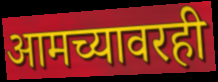
आमच्यावरही